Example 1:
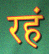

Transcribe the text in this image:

रहं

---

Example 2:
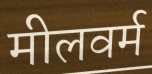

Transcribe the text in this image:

मीलवर्म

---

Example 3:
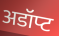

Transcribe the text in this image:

अडॉप्‍ट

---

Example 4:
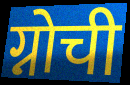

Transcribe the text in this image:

ग्नोची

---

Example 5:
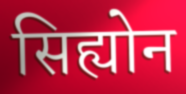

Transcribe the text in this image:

सिह्योन